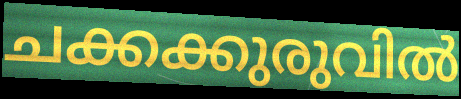
ചക്കക്കുരുവിൽ